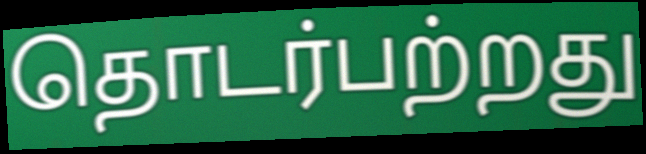
தொடர்பற்றது